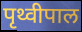
पृथ्वीपाल